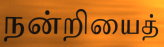
நன்றியைத்